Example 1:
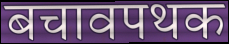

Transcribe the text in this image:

बचावपथक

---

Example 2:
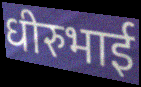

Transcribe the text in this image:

धीरुभाई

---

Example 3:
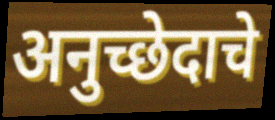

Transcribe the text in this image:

अनुच्छेदाचे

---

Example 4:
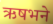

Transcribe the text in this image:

ऋषभने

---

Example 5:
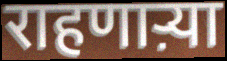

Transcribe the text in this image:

राहणाऱ्‍या